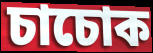
চাচোক